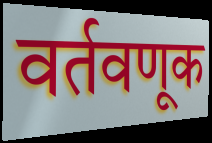
वर्तवणूक